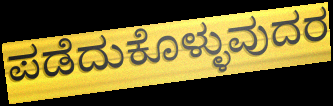
ಪಡೆದುಕೊಳ್ಳುವುದರ